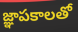
జ్ఞాపకాలతో